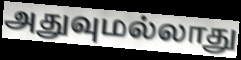
அதுவுமல்லாது